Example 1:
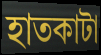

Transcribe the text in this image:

হাতকাটা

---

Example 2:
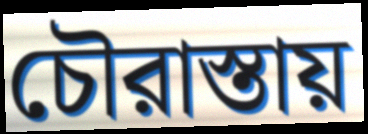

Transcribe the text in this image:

চৌরাস্তায়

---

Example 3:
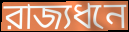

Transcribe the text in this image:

রাজ্যধনে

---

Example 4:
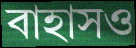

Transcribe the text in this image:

বাহাসও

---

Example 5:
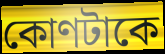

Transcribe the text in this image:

কোণটাকে